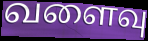
வளைவு